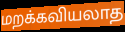
மறக்கவியலாத